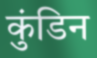
कुंडिन